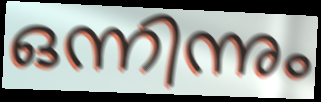
ഒന്നിന്നും